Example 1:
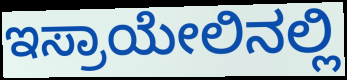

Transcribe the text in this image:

ಇಸ್ರಾಯೇಲಿನಲ್ಲಿ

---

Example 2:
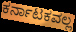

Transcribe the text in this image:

ಕರ್ನಾಟಕವಲ್ಲ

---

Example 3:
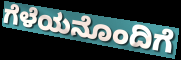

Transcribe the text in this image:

ಗೆಳೆಯನೊಂದಿಗೆ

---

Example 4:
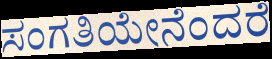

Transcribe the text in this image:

ಸಂಗತಿಯೇನೆಂದರೆ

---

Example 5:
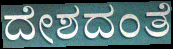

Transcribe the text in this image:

ದೇಶದಂತೆ